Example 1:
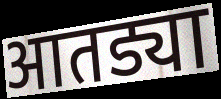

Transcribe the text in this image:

आतड्या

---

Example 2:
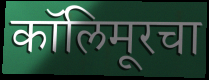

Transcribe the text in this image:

कॉलिमूरचा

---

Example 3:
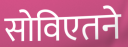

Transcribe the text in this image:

सोविएतने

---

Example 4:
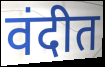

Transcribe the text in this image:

वंदीत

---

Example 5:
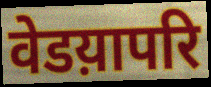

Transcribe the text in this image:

वेडय़ापरि